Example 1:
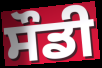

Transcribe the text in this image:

ਸੌਡੀ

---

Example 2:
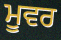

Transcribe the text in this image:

ਮੂਵਰ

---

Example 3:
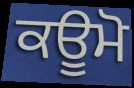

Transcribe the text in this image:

ਕਊਮੋ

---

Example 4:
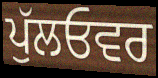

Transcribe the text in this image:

ਪੁੱਲਓਵਰ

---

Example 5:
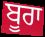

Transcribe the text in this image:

ਬੂਰਾ